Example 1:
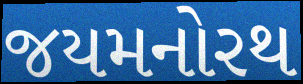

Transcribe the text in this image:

જયમનોરથ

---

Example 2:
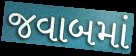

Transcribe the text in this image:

જવાબમાં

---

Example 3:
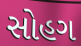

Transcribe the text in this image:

સોહગ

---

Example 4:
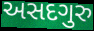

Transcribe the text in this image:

અસદગુરુ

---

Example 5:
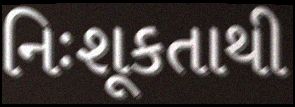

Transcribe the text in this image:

નિઃશૂકતાથી